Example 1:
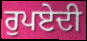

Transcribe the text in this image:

ਰੁਪਏਦੀ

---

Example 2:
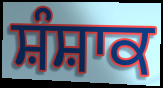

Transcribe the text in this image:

ਸ਼ੰਸ਼ਾਕ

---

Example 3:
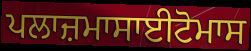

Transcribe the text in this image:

ਪਲਾਜ਼ਮਾਸਾਈਟੋਮਾਸ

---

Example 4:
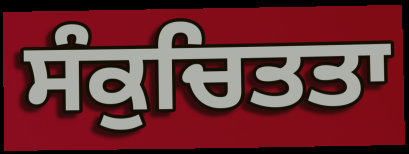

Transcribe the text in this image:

ਸੰਕੁਚਿਤਤਾ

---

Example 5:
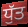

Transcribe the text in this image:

ਧੁੱਤ